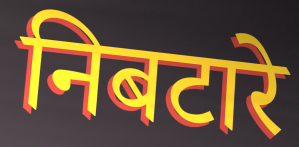
निबटारे